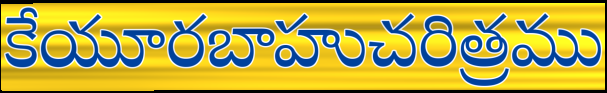
కేయూరబాహుచరిత్రము